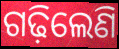
ଗଢ଼ିଲେଣି